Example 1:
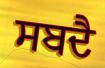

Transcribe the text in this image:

ਸਬਦੈ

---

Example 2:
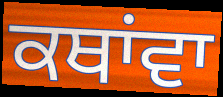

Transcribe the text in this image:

ਕਥਾਂਵਾ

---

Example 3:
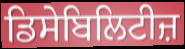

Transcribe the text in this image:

ਡਿਸੇਬਿਲਿਟੀਜ਼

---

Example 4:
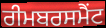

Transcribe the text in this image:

ਰੀਮਬਰਸਮੈਂਟ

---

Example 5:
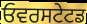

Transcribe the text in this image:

ਓਵਰਸਟੇਟਡ